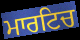
ਮਾਰਟਿਚ